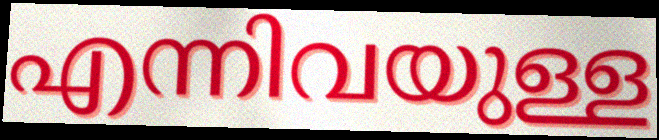
എന്നിവയുള്ള